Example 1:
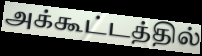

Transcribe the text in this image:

அக்கூட்டத்தில்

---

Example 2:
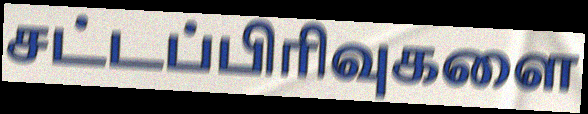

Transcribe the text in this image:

சட்டப்பிரிவுகளை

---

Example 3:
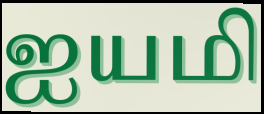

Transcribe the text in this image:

ஐயமி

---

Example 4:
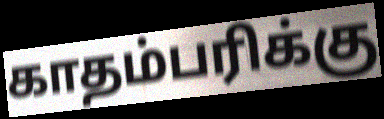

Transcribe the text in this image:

காதம்பரிக்கு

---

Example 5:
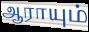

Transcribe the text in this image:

ஆராயும்